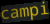
campi